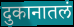
दुकानातलं